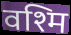
वश्मि